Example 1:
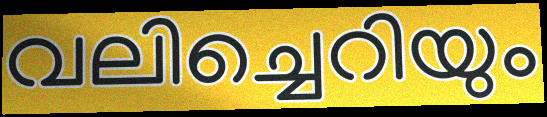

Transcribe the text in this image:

വലിച്ചെറിയും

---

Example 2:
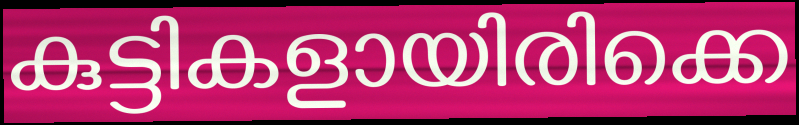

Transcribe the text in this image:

കുട്ടികളായിരിക്കെ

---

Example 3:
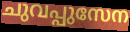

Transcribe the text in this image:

ചുവപ്പുസേന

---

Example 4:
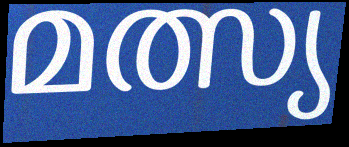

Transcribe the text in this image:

മത്സ്യ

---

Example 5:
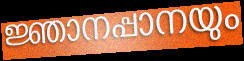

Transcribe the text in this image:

ജ്ഞാനപ്പാനയും